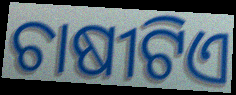
ଚାଷୀଟିଏ